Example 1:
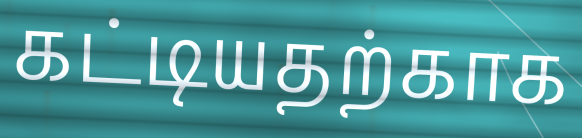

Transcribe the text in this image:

கட்டியதற்காக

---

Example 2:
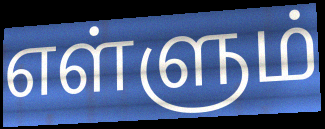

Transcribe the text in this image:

எள்ளும்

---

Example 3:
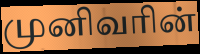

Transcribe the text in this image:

முனிவரின்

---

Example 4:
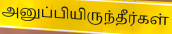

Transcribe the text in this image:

அனுப்பியிருந்தீர்கள்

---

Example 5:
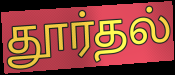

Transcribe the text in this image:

தூர்தல்